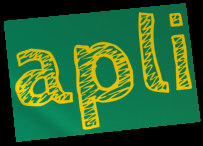
apli